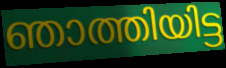
ഞാത്തിയിട്ട